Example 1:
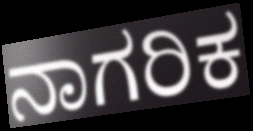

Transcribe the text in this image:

ನಾಗರಿಕ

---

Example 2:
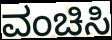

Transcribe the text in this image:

ವಂಚಿಸಿ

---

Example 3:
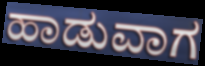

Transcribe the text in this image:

ಹಾಡುವಾಗ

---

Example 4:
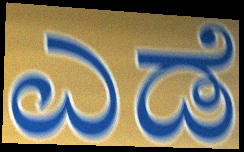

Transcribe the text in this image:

ಎಡೆ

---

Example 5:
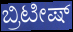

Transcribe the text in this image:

ಬ್ರಿಟೀಷ್